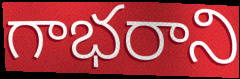
గాభరాని